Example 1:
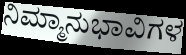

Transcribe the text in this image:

ನಿಮ್ಮಾನುಭಾವಿಗಳ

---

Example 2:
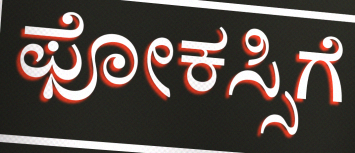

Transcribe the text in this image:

ಫೋಕಸ್ಸಿಗೆ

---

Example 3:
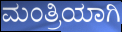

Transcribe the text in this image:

ಮಂತ್ರಿಯಾಗಿ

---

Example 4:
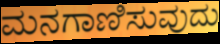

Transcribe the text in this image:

ಮನಗಾಣಿಸುವುದು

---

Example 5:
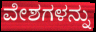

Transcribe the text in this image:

ವೇಶಗಳನ್ನು